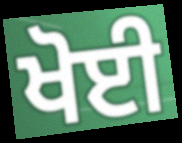
ਖੋਈ